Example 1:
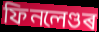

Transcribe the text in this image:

ফিনলেণ্ডৰ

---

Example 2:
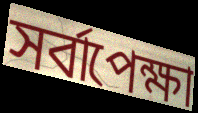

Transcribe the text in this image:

সৰ্বাপেক্ষা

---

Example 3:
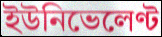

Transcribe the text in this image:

ইউনিভেলেণ্ট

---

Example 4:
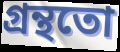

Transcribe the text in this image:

গ্ৰন্থতো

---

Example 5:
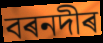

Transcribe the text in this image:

বৰনদীৰ